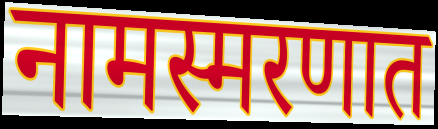
नामस्मरणात